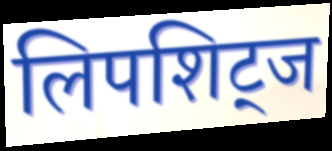
लिपशिट्ज